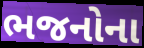
ભજનોના